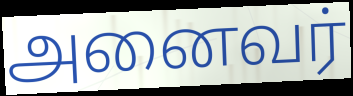
அனைவர்